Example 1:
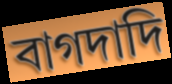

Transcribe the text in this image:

বাগদাদি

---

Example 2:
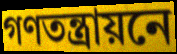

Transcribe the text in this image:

গণতন্ত্রায়নে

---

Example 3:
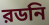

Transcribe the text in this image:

রডনি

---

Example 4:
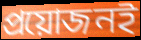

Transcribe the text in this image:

প্রয়োজনই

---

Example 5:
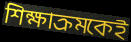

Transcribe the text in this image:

শিক্ষাক্রমকেই